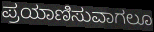
ಪ್ರಯಾಣಿಸುವಾಗಲೂ